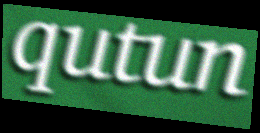
qutun